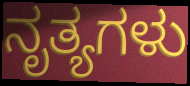
ನೃತ್ಯಗಳು